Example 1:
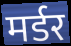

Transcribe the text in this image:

मर्डर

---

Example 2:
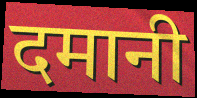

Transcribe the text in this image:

दमानी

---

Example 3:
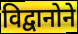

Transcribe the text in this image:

विद्वानोने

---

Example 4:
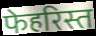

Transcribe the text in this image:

फेहरिस्‍त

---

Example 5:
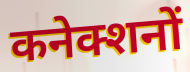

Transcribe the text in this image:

कनेक्शनों